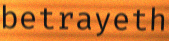
betrayeth